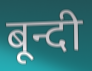
बून्दी